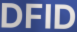
DFID